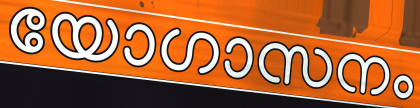
യോഗാസനം